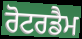
ਰੋਟਰਡੈਮ